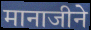
मानाजीने